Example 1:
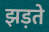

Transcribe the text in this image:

झड़ते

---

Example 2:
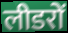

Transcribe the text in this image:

लीडरों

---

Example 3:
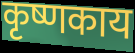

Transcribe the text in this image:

कृष्णकाय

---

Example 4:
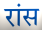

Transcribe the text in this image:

रांस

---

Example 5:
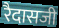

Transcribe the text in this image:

रैदासजी